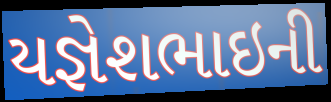
યજ્ઞેશભાઇની